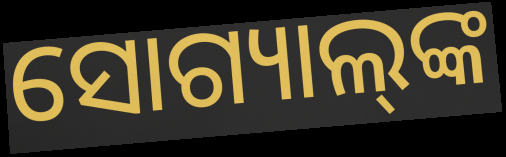
ସୋଗ୍ୟାଲ୍‌ଙ୍କ